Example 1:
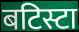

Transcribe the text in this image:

बटिस्टा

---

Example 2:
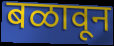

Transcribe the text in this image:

बळावून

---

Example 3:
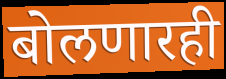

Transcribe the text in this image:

बोलणारही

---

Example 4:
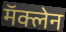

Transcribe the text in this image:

मॅक्लेन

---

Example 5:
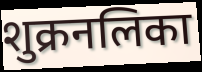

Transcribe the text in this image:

शुक्रनलिका